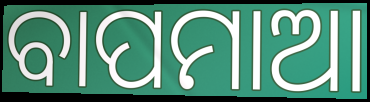
ବାପମାଆ